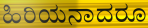
ಹಿರಿಯನಾದರೂ